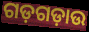
ଗଡ଼ଗଡ଼ାଉ